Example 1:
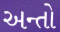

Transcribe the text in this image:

અન્તો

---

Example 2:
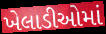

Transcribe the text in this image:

ખેલાડીઓમાં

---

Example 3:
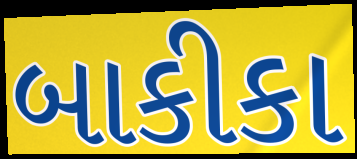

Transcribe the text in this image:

બાકીકા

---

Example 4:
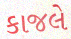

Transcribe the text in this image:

કાજલે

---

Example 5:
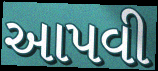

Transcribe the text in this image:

આપવી